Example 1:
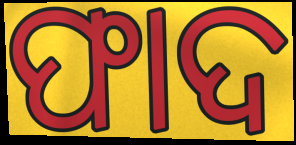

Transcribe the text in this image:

ଫାଦ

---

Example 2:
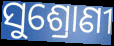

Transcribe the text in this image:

ସୁଶ୍ରୋଣୀ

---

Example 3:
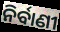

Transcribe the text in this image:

ନିର୍ବାଣୀ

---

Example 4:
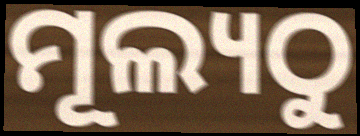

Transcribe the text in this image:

ମୂଲ୍ୟଠୁ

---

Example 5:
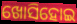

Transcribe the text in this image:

ଖୋସିହୋଇ